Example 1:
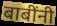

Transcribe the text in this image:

बाबींनी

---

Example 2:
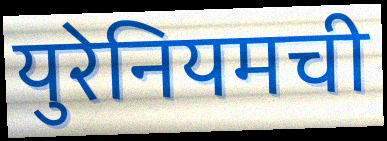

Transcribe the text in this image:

युरेनियमची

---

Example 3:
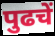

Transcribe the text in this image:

पुढचें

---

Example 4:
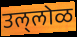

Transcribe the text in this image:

उल्लोळ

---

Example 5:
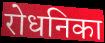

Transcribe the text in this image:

रोधनिका